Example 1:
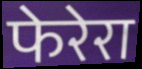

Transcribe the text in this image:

फेरेरा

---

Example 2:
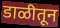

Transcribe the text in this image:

डाळीतून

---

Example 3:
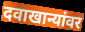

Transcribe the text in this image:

दवाखान्यांवर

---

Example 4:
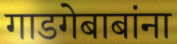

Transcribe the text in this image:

गाडगेबाबांना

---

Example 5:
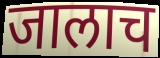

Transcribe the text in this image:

जालाच